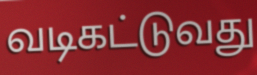
வடிகட்டுவது